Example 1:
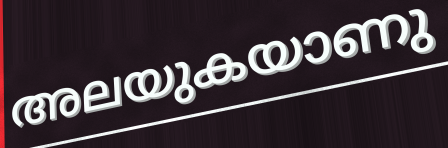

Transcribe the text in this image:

അലയുകയാണു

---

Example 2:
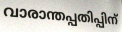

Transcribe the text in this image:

വാരാന്തപ്പതിപ്പിന്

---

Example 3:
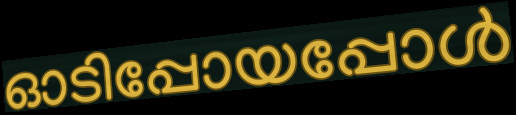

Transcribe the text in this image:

ഓടിപ്പോയപ്പോൾ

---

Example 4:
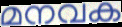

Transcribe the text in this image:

മനവക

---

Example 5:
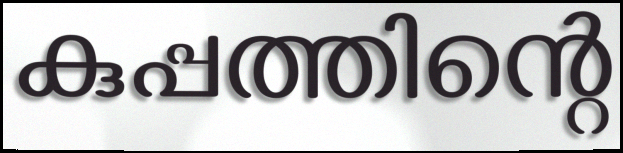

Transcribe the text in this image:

കുപ്പത്തിന്റെ